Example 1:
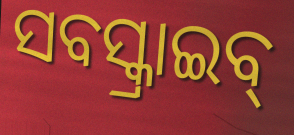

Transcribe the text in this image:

ସବସ୍କ୍ରାଇବ୍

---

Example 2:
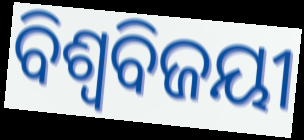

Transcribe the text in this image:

ବିଶ୍ବବିଜୟୀ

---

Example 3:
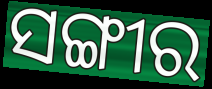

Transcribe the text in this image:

ସଙ୍ଗୀର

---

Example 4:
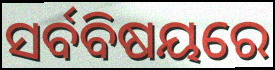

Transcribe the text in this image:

ସର୍ବବିଷୟରେ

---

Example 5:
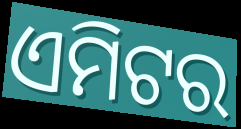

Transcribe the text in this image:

ଏମିଟର